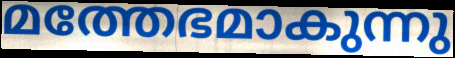
മത്തേഭമാകുന്നു